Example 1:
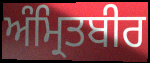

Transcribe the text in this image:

ਅੰਮ੍ਰਿਤਬੀਰ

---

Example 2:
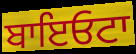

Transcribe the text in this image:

ਬਾਇਓਟਾ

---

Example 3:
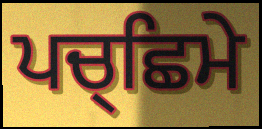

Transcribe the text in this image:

ਪਚ੍ਛਿਮੇ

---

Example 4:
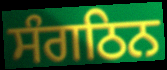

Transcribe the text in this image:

ਸੰਗਠਿਨ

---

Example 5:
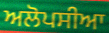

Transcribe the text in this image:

ਅਲੋਪਸੀਆ